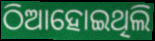
ଠିଆହୋଇଥିଲି